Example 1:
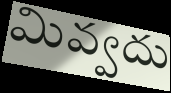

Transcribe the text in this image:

మివ్వదు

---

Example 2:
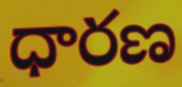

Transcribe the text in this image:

ధారణ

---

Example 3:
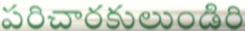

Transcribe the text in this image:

పరిచారకులుండిరి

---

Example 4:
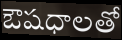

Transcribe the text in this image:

ఔషధాలతో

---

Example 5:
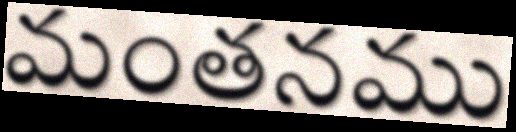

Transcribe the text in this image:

మంతనము